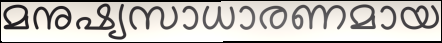
മനുഷ്യസാധാരണമായ